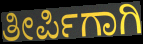
ತೀರ್ಪಿಗಾಗಿ